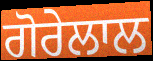
ਗੋਰੇਲਾਲ